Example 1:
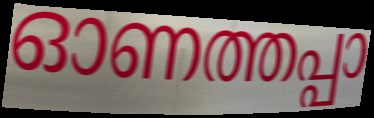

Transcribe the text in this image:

ഓണത്തപ്പാ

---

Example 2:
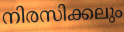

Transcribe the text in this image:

നിരസിക്കലും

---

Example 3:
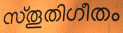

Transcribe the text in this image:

സ്തൂതിഗീതം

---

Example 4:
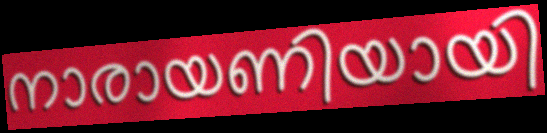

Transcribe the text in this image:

നാരായണിയായി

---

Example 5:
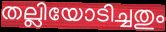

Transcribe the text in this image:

തല്ലിയോടിച്ചതും